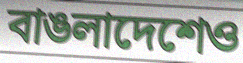
বাঙলাদেশেও